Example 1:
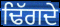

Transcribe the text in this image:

ਢਿੱਗਦੇ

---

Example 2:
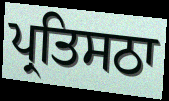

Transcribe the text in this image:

ਪ੍ਰਤਿਸਠਾ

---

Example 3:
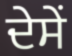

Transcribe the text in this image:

ਦੇਸੇਂ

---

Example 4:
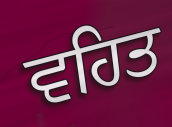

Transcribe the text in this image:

ਵਹਿਤ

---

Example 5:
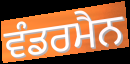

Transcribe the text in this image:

ਵੰਡਰਮੈਨ